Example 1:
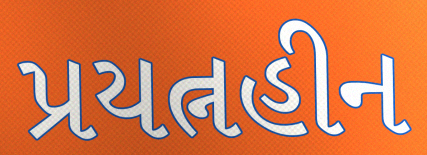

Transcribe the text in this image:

પ્રયત્નહીન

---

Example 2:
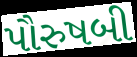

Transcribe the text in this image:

પૌરુષબી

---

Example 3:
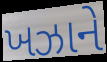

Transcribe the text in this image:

ખઝાને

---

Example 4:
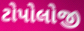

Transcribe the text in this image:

ટોપોલોજી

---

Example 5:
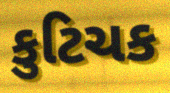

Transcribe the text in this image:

કુટિચક